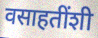
वसाहतींशी